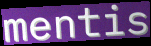
mentis